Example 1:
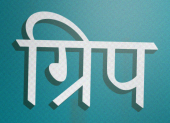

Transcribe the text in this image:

ग्रिप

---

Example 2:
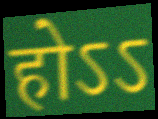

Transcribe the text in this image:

होऽऽ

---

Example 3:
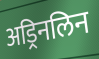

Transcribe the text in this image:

अड्रिनलिन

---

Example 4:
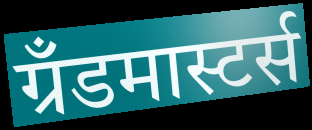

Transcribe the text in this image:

ग्रँडमास्टर्स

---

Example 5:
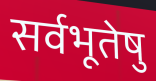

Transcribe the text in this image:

सर्वभूतेषु